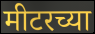
मीटरच्या